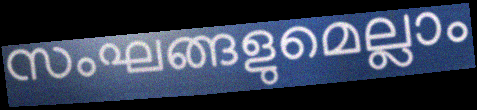
സംഘങ്ങളുമെല്ലാം